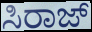
ಸಿರಾಜ್